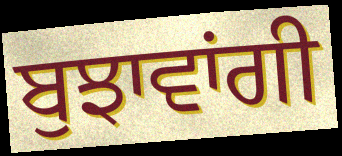
ਬੁਝਾਵਾਂਗੀ